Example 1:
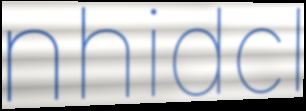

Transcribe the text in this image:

nhidcl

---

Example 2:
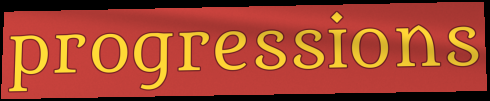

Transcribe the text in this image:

progressions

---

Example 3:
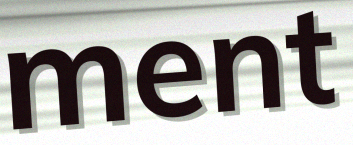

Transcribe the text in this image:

ment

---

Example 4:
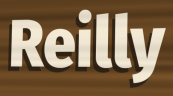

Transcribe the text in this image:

Reilly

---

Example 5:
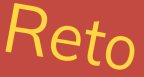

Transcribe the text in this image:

Reto